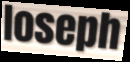
Ioseph